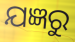
ଯଜ୍ଞରୁ